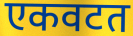
एकवटत